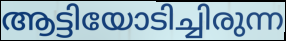
ആട്ടിയോടിച്ചിരുന്ന